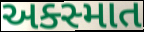
અક્સ્માત